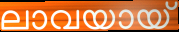
ലാവയായ്